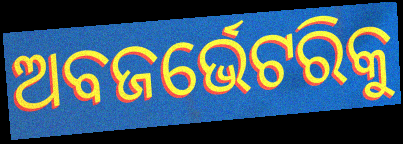
ଅବଜର୍ଭେଟରିକୁ